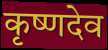
कृष्णदेव